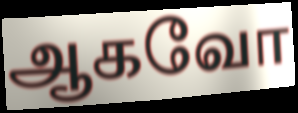
ஆகவோ